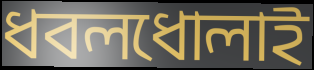
ধবলধোলাই